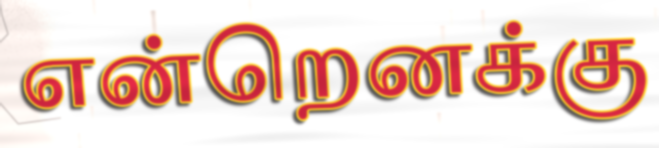
என்றெனக்கு